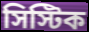
সিস্টিক